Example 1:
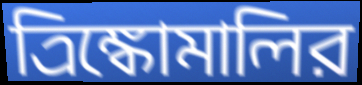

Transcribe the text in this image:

ত্রিঙ্কোমালির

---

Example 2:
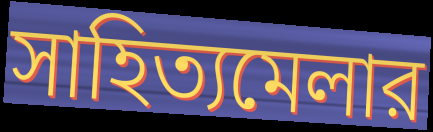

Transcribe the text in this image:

সাহিত্যমেলার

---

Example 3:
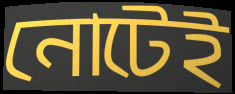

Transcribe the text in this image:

নোটেই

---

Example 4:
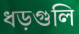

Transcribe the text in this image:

ধড়গুলি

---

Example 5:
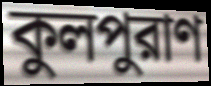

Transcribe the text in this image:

কুলপুরাণ